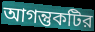
আগন্তুকটির